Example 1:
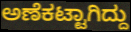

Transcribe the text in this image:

ಅಣೆಕಟ್ಟಾಗಿದ್ದು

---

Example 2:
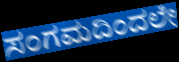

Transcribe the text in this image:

ಸಂಗಮದಿಂದಲೇ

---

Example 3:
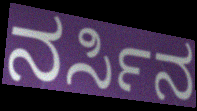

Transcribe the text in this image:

ನರ್ಸಿನ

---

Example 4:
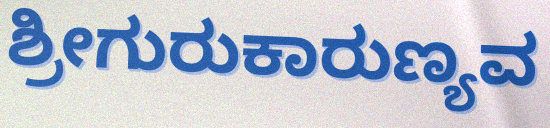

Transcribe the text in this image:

ಶ್ರೀಗುರುಕಾರುಣ್ಯವ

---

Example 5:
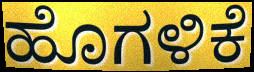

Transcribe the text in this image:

ಹೊಗಳಿಕೆ